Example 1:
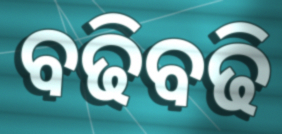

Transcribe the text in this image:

ବଢିବଢି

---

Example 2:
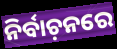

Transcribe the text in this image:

ନିର୍ବାଚ଼ନରେ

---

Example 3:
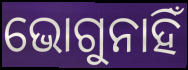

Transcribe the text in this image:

ଭୋଗୁନାହିଁ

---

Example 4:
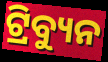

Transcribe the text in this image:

ଟ୍ରିବ୍ୟୁନ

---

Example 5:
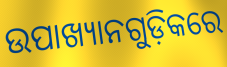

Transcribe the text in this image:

ଉପାଖ୍ୟାନଗୁଡ଼ିକରେ